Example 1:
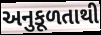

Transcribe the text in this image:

અનુકૂળતાથી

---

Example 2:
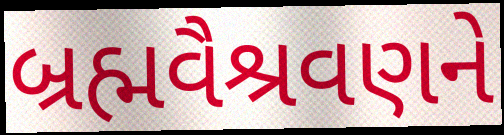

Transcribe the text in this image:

બ્રહ્મવૈશ્રવણને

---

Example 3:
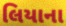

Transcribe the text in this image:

લિયાના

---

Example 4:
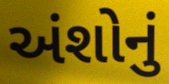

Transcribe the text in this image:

અંશોનું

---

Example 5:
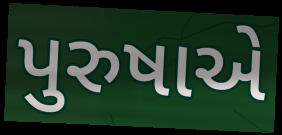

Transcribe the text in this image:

પુરુષાએ